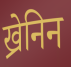
ख्रेनिन